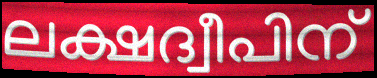
ലക്ഷദ്വീപിന്